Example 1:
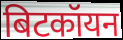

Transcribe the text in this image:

बिटकॉयन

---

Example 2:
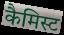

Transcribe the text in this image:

कैमिस्ट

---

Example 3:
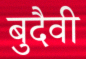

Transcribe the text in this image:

बुदैवी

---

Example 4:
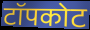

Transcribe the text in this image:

टॉपकोट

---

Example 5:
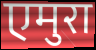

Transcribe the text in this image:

एमुरा